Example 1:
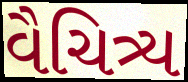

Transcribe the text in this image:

વૈચિત્ર્ય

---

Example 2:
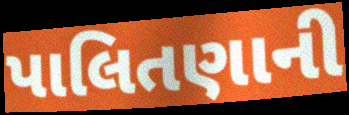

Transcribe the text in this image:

પાલિતણાની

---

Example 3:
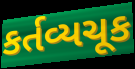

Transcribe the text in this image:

કર્તવ્યચૂક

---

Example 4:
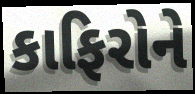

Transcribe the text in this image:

કાફિરોને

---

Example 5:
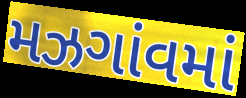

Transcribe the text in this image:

મઝગાંવમાં